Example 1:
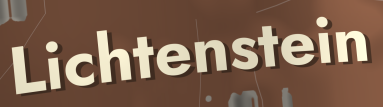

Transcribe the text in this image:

Lichtenstein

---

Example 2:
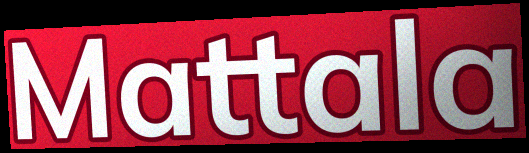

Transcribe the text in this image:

Mattala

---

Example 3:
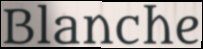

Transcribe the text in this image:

Blanche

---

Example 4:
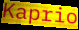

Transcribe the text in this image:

Kaprio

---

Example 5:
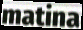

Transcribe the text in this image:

matina